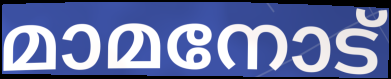
മാമനോട്